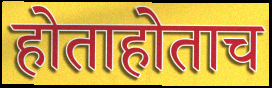
होताहोताच